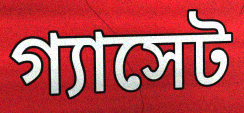
গ্যাসেট